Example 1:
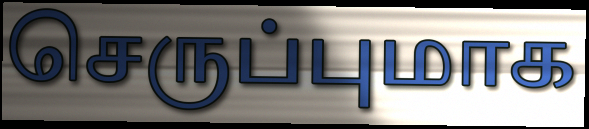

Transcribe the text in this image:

செருப்புமாக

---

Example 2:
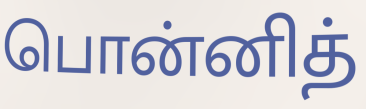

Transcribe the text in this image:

பொன்னித்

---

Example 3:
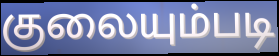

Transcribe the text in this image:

குலையும்படி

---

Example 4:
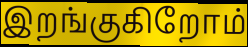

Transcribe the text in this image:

இறங்குகிறோம்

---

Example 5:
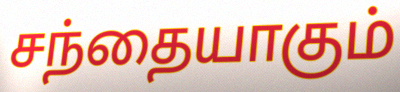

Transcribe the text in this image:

சந்தையாகும்